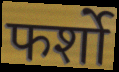
फर्शो